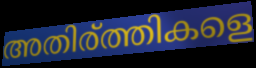
അതിര്ത്തികളെ